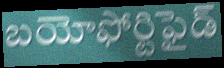
బయోఫోర్టిఫైడ్